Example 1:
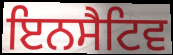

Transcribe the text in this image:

ਇਨਸੈਟਿਵ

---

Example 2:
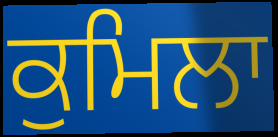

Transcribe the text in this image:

ਕੁਮਿਲਾ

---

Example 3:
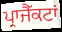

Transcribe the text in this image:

ਪ੍ਰਾਜੈੱਕਟਾਂ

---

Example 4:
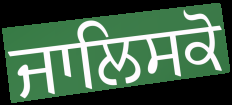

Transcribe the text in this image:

ਜਾਲਿਸਕੋ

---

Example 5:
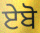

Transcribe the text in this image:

ਏਬੋ